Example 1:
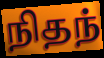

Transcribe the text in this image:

நிதந்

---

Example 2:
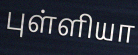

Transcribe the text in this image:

புள்ளியா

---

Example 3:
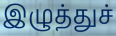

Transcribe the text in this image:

இழுத்துச்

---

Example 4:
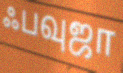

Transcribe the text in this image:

ஃபவுஜா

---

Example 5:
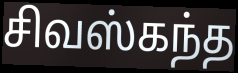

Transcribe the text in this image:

சிவஸ்கந்த